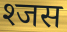
श्जस